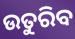
ଉତୁରିବ